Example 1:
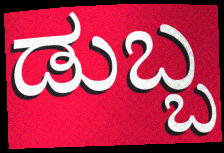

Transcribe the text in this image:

ಡುಬ್ಬ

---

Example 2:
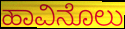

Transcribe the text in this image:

ಹಾವಿನೊಲು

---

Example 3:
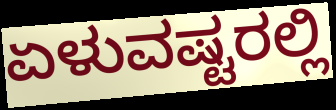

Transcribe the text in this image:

ಏಳುವಷ್ಟರಲ್ಲಿ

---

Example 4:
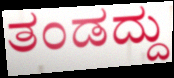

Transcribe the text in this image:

ತಂಡದ್ದು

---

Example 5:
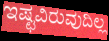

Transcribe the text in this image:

ಇಷ್ಟವಿರುವುದಿಲ್ಲ